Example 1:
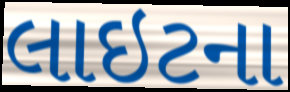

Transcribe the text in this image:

લાઇટના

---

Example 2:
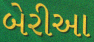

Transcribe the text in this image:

બેરીઆ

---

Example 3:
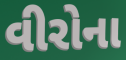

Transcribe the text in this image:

વીરોના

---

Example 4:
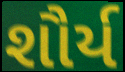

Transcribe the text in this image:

શૌર્ય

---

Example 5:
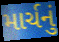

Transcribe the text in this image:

માર્ચનું